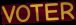
VOTER